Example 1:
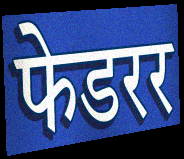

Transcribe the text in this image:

फेडरर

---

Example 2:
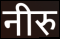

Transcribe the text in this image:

नीरु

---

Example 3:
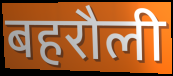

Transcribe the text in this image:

बहरौली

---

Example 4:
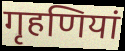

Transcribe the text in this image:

गृहणियां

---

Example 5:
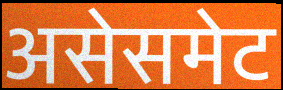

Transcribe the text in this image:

असेसमेट